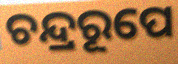
ଚନ୍ଦ୍ରରୂପେ